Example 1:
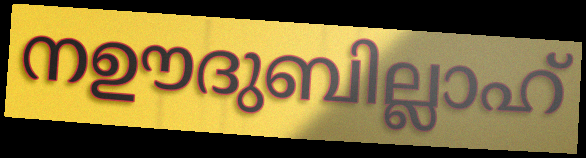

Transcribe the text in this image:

നഊദുബില്ലാഹ്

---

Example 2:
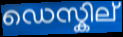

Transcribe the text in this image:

ഡെസ്കില്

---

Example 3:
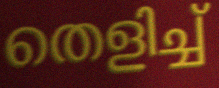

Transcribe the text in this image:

തെളിച്ച്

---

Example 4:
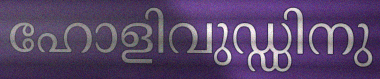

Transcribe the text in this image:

ഹോളിവുഡ്ഡിനു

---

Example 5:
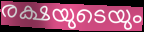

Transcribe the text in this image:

രക്ഷയുടെയും